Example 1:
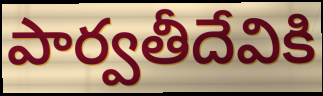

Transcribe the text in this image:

పార్వతీదేవికి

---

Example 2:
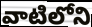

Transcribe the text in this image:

వాటిలోని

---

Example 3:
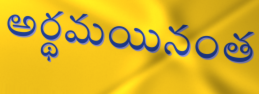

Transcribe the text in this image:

అర్థమయినంత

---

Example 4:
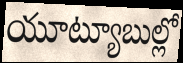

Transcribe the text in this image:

యూట్యూబుల్లో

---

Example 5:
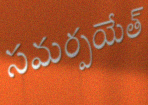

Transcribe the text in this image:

సమర్పయేత్